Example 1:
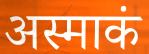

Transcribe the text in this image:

अस्माकं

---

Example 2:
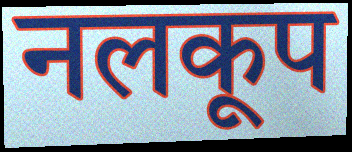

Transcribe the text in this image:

नलकूप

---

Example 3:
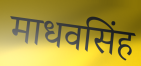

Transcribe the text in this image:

माधवसिंह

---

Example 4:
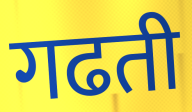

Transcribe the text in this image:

गढती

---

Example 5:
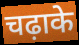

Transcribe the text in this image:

चढ़ाके